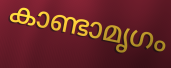
കാണ്ടാമൃഗം